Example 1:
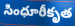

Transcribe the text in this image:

సింధూరీకృత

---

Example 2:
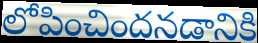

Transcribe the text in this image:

లోపించిందనడానికి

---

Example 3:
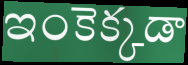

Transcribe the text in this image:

ఇంకెక్కడా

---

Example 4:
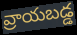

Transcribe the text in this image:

వ్రాయబడ్డ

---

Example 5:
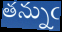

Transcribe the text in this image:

తన్నుఁ